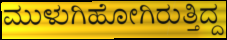
ಮುಳುಗಿಹೋಗಿರುತ್ತಿದ್ದ